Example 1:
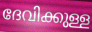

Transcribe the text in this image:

ദേവിക്കുള്ള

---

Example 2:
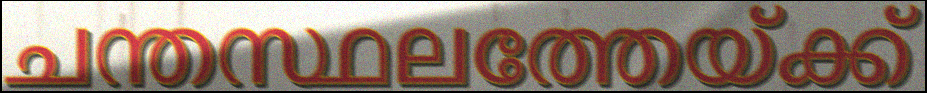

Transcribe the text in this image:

ചന്തസ്ഥലത്തേയ്ക്ക്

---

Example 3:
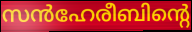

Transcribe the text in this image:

സൻഹേരീബിന്റെ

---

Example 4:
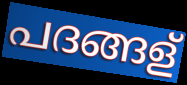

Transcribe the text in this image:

പദങ്ങള്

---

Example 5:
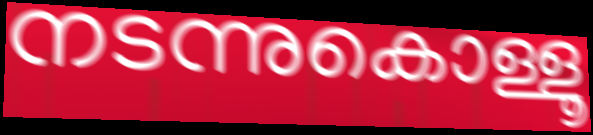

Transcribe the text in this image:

നടന്നുകൊള്ളൂ